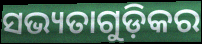
ସଭ୍ୟତାଗୁଡ଼ିକର